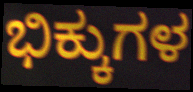
ಭಿಕ್ಕುಗಳ